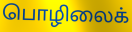
பொழிலைக்